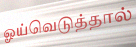
ஓய்வெடுத்தால்